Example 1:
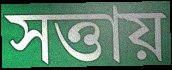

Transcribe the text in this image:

সত্তায়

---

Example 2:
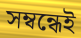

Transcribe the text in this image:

সম্বন্ধেই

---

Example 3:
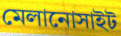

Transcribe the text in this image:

মেলানোসাইট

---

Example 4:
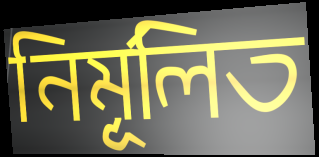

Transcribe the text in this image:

নির্মূলিত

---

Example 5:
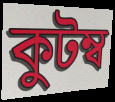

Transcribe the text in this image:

কুটম্ব